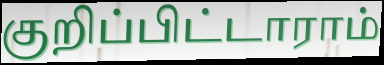
குறிப்பிட்டாராம்